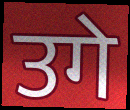
उगे